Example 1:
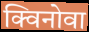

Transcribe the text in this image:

क्विनोवा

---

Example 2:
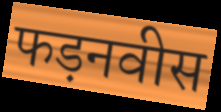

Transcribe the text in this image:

फड़नवीस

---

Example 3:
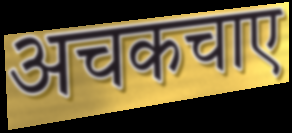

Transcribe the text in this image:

अचकचाए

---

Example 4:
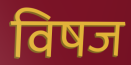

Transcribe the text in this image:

विषज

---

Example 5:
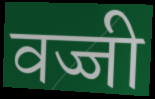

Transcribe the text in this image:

वज्जी